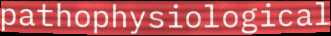
pathophysiological